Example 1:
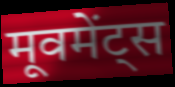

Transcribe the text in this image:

मूवमेंट्स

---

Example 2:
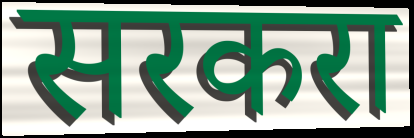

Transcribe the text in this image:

सरकरा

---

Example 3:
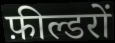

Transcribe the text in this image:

फ़ील्डरों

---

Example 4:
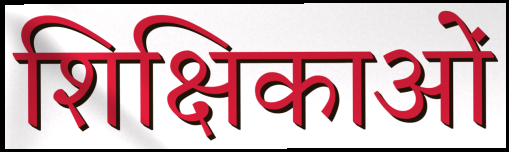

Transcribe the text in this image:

शिक्षिकाओं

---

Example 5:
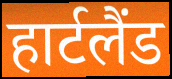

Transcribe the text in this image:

हार्टलैंड